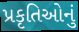
પ્રકૃતિઓનું